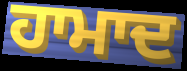
ਹਾਮਾਦ